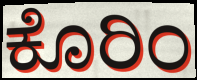
ಕೊರಿಂ